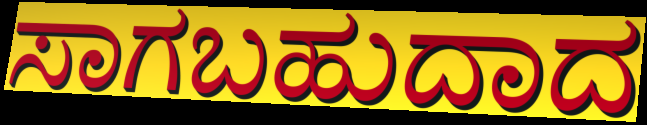
ಸಾಗಬಹುದಾದ